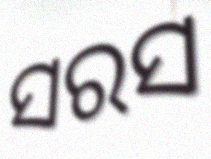
ସରସ